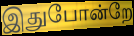
இதுபோன்றே